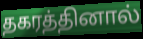
தகரத்தினால்